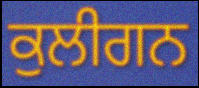
ਕੁਲੀਗਨ